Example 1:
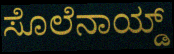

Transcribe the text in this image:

ಸೊಲೆನಾಯ್ಡ್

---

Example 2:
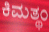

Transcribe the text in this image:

ಕಿಮತ್ಥಂ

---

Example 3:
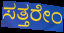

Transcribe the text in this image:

ಸತ್ತರೇಂ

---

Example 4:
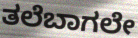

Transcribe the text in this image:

ತಲೆಬಾಗಲೇ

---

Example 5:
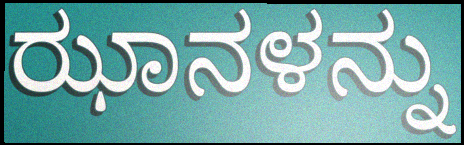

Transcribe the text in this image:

ಝಾನಳನ್ನು